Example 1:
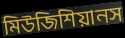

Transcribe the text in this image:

মিউজিশিয়ানস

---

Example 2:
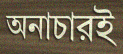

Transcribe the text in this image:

অনাচারই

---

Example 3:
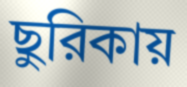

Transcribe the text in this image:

ছুরিকায়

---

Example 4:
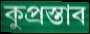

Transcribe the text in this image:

কুপ্রস্তাব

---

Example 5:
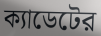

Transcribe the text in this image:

ক্যাডেটের